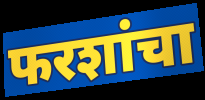
फरशांचा